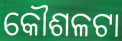
କୌଶଳଟା